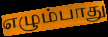
எழும்பாது